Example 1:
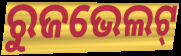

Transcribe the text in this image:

ରୁଜଭେଲଟ୍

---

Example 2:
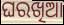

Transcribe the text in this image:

ଘରଖିଆ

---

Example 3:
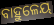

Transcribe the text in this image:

ବାହୁଳେୟ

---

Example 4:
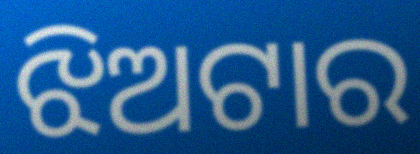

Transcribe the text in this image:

ଝିଅଟାର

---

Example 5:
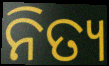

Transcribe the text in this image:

ନିତ୍ୟ